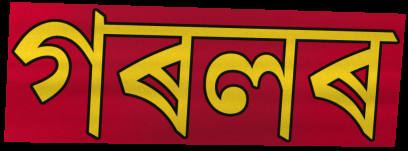
গৰলৰ